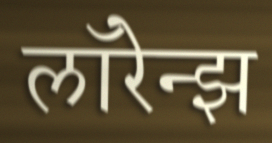
लॉरेन्झ